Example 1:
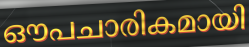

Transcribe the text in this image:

ഔപചാരികമായി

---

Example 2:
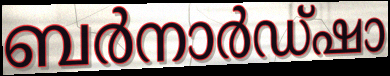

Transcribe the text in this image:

ബർനാർഡ്ഷാ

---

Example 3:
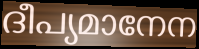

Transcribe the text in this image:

ദീപ്യമാനേന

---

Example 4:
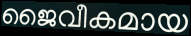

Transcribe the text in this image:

ജൈവീകമായ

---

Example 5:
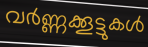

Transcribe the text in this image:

വർണ്ണക്കൂട്ടുകൾ